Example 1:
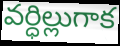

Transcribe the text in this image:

వర్ధిల్లుగాక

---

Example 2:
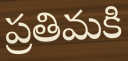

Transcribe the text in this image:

ప్రతిమకి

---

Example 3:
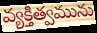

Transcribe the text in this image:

వ్యక్తిత్వమును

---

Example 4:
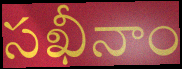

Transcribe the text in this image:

సఖీనాం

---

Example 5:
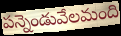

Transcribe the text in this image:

పన్నెండువేలమంది